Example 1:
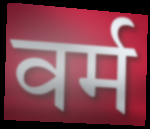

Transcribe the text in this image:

वर्म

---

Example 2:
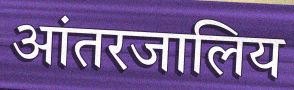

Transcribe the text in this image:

आंतरजालिय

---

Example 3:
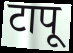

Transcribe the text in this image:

टापू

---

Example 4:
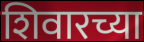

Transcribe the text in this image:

शिवारच्या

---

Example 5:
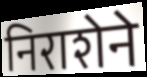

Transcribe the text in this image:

निराशेने